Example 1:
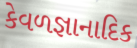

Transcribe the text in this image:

કેવળજ્ઞાનાદિક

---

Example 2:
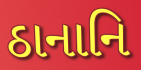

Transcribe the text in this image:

ઠાનાનિ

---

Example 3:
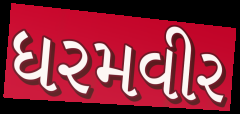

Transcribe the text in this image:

ધરમવીર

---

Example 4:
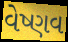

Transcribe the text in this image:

વેષ્ણવ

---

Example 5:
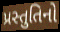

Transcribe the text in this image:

પ્રસ્તુતિનો